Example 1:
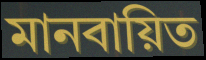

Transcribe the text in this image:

মানবায়িত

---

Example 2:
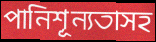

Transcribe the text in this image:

পানিশূন্যতাসহ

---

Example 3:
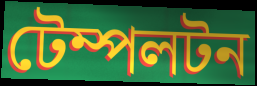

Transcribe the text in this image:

টেম্পলটন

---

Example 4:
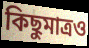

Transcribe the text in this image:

কিছুমাত্রও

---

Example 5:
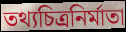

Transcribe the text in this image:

তথ্যচিত্রনির্মাতা